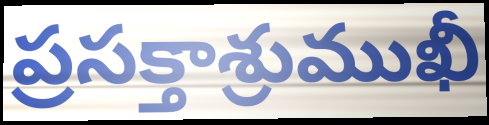
ప్రసక్తాశ్రుముఖీ